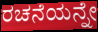
ರಚನೆಯನ್ನೇ